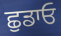
ਛੁਡਾਓ